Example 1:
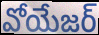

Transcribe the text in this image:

వోయేజర్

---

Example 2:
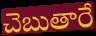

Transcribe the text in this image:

చెబుతారే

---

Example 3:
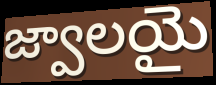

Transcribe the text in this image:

జ్వాలయై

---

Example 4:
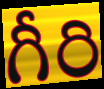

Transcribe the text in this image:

గీరి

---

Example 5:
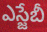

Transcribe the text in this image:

ఎస్జేబీ